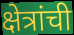
क्षेत्रांची